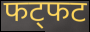
फट्फट